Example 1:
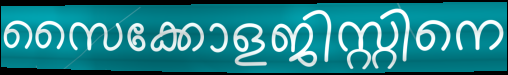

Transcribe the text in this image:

സൈക്കോളജിസ്റ്റിനെ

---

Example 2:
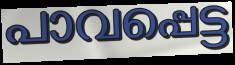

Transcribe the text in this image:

പാവപ്പെട്ട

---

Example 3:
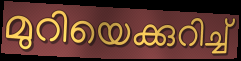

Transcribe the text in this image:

മുറിയെക്കുറിച്ച്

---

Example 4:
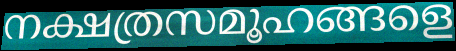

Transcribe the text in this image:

നക്ഷത്രസമൂഹങ്ങളെ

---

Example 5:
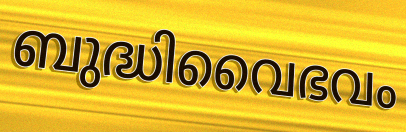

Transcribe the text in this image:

ബുദ്ധിവൈഭവം